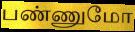
பண்ணுமோ